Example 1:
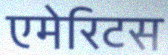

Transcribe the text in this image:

एमेरिटस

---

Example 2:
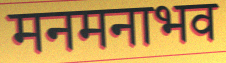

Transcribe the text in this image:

मनमनाभव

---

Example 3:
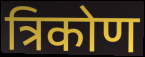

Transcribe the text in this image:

त्रिकोण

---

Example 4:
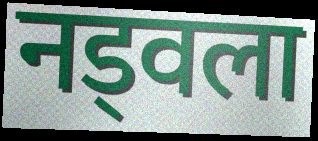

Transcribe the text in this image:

नड्वला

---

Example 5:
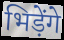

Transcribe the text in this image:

भिड़ेंगे